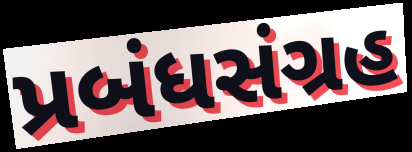
પ્રબંધસંગ્રહ